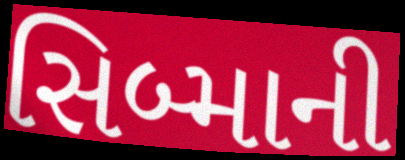
સિબ્માની